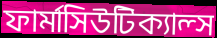
ফার্মাসিউটিক্যাল্স